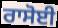
ਰਾਸੋਈ